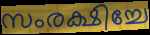
സംരക്ഷിച്ചേ